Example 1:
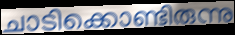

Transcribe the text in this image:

ചാടിക്കൊണ്ടിരുന്നു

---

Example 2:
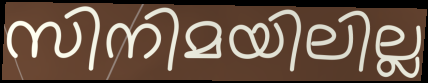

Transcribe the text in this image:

സിനിമയിലില്ല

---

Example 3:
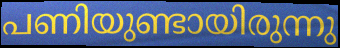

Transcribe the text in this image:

പണിയുണ്ടായിരുന്നു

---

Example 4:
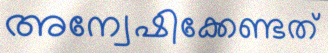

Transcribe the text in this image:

അന്വേഷിക്കേണ്ടത്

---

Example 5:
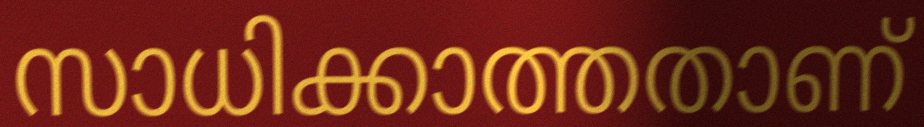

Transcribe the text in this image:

സാധിക്കാത്തതാണ്